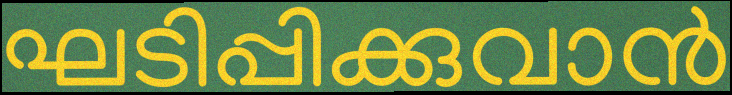
ഘടിപ്പിക്കുവാൻ